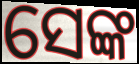
ସେଙ୍କ